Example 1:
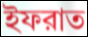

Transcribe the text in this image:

ইফরাত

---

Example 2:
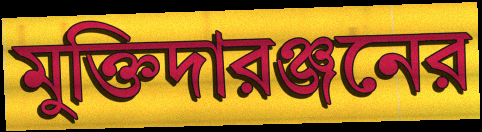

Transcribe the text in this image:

মুক্তিদারঞ্জনের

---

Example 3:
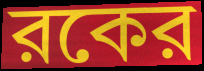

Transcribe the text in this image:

রকের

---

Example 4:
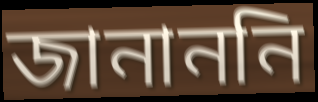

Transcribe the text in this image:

জানাননি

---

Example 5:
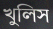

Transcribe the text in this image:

খুলিস